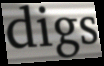
digs